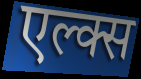
एल्क्स